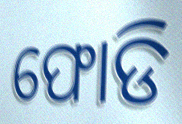
ଫୋଡି